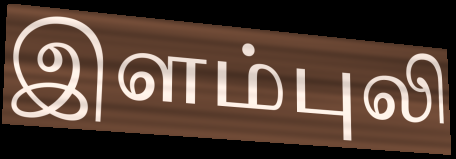
இளம்புலி